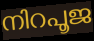
നിറപൂജ